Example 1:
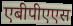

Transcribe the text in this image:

एबीपीएएस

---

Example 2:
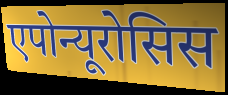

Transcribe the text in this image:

एपोन्यूरोसिस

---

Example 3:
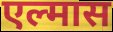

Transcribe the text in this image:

एल्मास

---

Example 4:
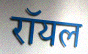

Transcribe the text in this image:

रॉयल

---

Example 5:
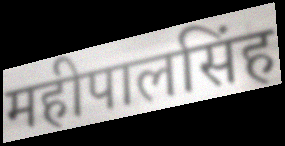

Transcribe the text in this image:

महीपालसिंह